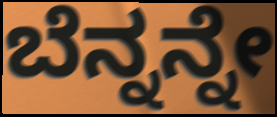
ಬೆನ್ನನ್ನೇ